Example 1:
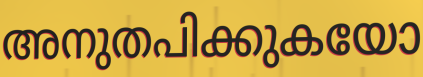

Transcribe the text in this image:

അനുതപിക്കുകയോ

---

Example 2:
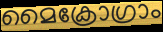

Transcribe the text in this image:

മൈക്രോഗ്രാം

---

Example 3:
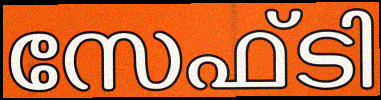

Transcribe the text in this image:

സേഫ്ടി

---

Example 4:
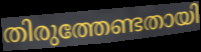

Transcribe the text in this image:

തിരുത്തേണ്ടതായി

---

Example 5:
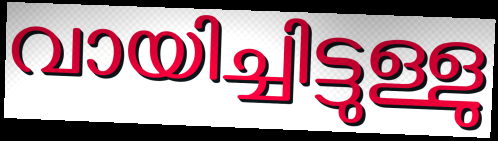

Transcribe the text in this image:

വായിച്ചിട്ടുള്ളു